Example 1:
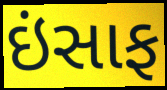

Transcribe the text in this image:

ઇંસાફ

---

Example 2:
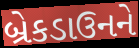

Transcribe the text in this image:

બ્રેકડાઉનને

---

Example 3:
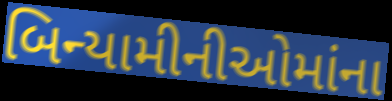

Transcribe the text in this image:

બિન્યામીનીઓમાંના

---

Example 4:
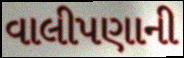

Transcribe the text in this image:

વાલીપણાની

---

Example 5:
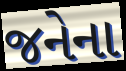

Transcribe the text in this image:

જનેના